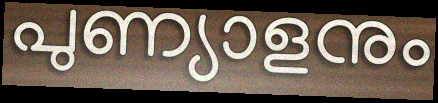
പുണ്യാളനും